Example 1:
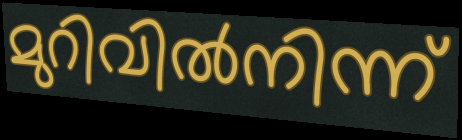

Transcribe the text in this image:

മുറിവിൽനിന്ന്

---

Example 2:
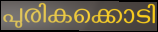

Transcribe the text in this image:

പുരികക്കൊടി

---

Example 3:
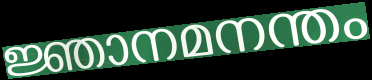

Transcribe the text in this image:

ജ്ഞാനമനന്തം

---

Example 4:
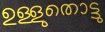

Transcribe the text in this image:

ഉള്ളുതൊട്ടു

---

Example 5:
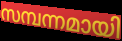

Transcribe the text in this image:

സമ്പന്നമായി